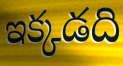
ఇక్కడది